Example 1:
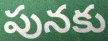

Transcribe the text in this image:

పునకు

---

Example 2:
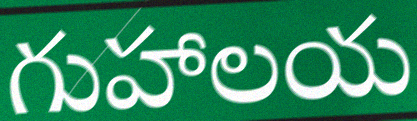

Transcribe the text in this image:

గుహాలయ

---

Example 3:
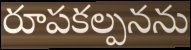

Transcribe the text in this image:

రూపకల్పనను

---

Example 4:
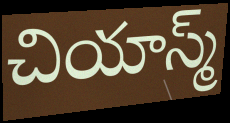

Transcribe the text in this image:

చియాస్మ్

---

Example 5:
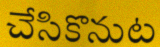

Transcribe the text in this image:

చేసికొనుట